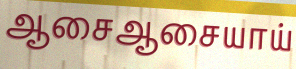
ஆசைஆசையாய்